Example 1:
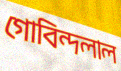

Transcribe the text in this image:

গোবিন্দলাল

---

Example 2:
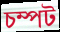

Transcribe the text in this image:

চম্পট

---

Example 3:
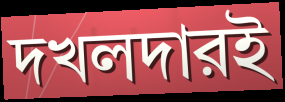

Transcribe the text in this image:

দখলদারই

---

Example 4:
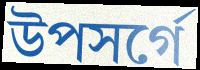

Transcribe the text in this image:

উপসর্গে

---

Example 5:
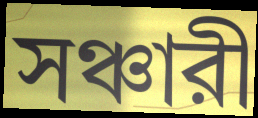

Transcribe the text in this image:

সঞ্চারী